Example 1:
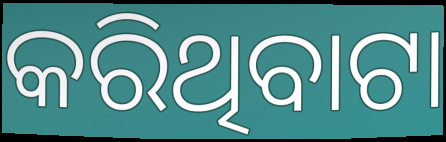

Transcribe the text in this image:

କରିଥିବାଟା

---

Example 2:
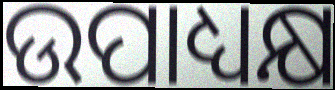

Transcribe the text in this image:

ଉପାଧ୍ୟକ୍ଷ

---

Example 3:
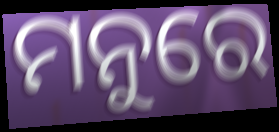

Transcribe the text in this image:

ମନୁରେ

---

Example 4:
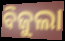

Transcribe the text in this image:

ବିଜୁଲା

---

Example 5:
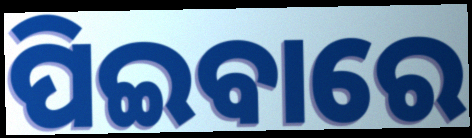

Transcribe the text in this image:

ପିଇବାରେ